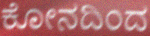
ಕೋನದಿಂದ